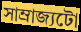
সাম্ৰাজ্যটো